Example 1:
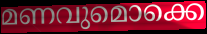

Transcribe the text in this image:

മണവുമൊക്കെ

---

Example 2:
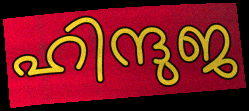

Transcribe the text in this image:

ഹിന്ദുജ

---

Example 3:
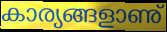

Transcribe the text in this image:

കാര്യങ്ങളാണു്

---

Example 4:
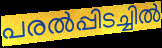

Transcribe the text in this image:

പരൽപ്പിടച്ചിൽ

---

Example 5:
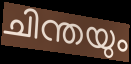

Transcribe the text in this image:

ചിന്തയും